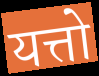
यत्तो